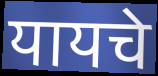
यायचे